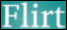
Flirt